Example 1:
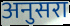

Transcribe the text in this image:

अनुसरा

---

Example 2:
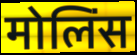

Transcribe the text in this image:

मोलिंस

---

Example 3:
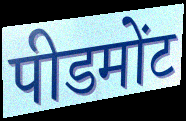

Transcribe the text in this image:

पीडमोंट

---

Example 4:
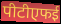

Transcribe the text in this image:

पीटीएफई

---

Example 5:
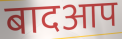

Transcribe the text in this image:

बादआप